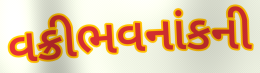
વક્રીભવનાંકની